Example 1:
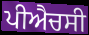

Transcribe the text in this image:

ਪੀਐਚਸੀ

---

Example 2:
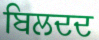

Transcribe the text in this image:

ਬਿਲਦਦ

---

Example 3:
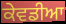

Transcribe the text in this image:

ਕੇਵਡੀਆ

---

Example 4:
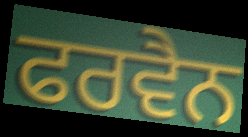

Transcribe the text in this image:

ਫਰਵੈਨ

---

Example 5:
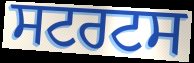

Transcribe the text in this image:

ਸਟਰਟਸ